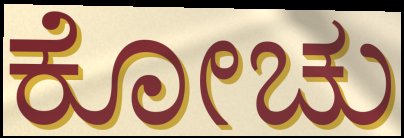
ಕೋಚು